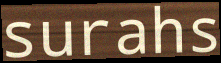
surahs